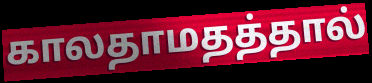
காலதாமதத்தால்